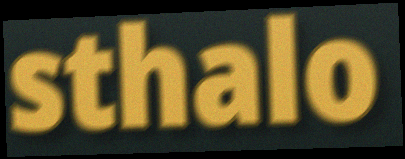
sthalo